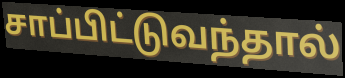
சாப்பிட்டுவந்தால்